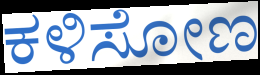
ಕಳಿಸೋಣ